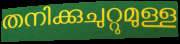
തനിക്കുചുറ്റുമുള്ള